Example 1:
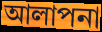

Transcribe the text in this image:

আলাপনা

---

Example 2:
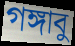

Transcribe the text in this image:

গঙ্গাবু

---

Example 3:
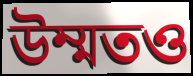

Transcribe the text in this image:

উম্মতও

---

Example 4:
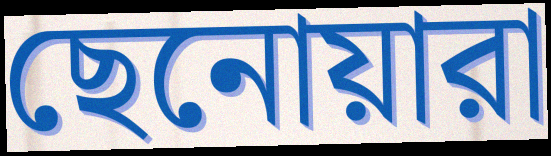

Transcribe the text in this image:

ছেনোয়ারা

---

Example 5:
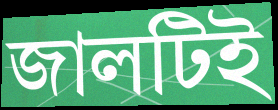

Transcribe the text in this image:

জালটিই